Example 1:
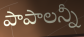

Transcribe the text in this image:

పాపాలన్నీ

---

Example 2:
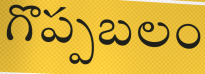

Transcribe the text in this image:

గొప్పబలం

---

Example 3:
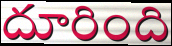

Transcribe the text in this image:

దూరింది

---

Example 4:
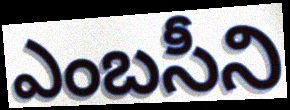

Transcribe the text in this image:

ఎంబసీని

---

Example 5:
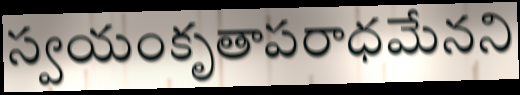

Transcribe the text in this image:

స్వయంకృతాపరాధమేనని